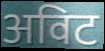
अविट